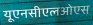
यूएनसीएलओएस